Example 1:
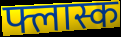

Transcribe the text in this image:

फ्लास्क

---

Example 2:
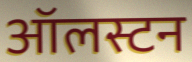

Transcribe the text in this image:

ऑलस्टन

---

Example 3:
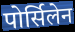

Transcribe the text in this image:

पोर्सिलेन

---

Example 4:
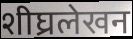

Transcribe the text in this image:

शीघ्रलेखन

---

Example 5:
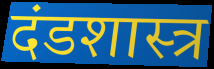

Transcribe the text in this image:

दंडशास्त्र